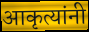
आकृत्यांनी